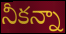
నీకన్నా